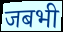
जबभी